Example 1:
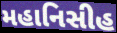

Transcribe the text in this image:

મહાનિસીહ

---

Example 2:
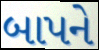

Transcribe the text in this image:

બાપને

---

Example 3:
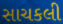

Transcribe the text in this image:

સાચકલી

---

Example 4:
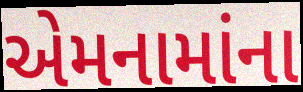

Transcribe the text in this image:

એમનામાંના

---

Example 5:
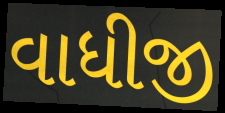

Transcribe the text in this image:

વાધીજી